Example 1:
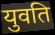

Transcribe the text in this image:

युवति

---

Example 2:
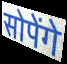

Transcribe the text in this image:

सोपेंगे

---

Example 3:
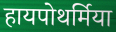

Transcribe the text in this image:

हायपोथर्मिया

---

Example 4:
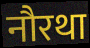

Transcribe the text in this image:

नौरथा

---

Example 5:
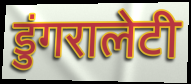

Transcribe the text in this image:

डुंगरालेटी